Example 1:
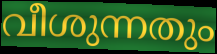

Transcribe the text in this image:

വീശുന്നതും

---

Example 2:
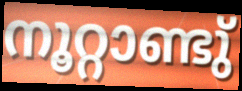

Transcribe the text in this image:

നൂറ്റാണ്ടു്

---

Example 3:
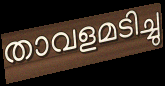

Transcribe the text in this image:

താവളമടിച്ചു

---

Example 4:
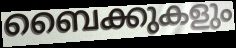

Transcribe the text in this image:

ബൈക്കുകളും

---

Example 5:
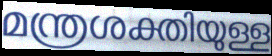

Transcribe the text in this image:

മന്ത്രശക്തിയുള്ള